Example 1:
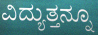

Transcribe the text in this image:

ವಿದ್ಯುತ್ತನ್ನೂ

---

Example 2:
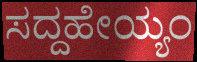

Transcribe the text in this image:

ಸದ್ದಹೇಯ್ಯಂ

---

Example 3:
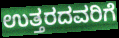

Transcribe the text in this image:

ಉತ್ತರದವರಿಗೆ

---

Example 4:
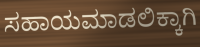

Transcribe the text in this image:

ಸಹಾಯಮಾಡಲಿಕ್ಕಾಗಿ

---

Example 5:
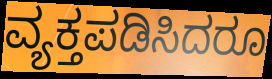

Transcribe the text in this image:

ವ್ಯಕ್ತಪಡಿಸಿದರೂ